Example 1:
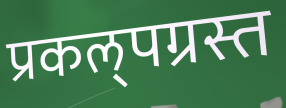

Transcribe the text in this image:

प्रकल्पग्रस्त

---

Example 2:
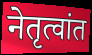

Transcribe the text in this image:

नेतृत्वांत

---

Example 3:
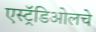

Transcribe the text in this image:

एस्ट्रॅडिओलचे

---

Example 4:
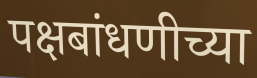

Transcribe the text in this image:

पक्षबांधणीच्या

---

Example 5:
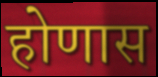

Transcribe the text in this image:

होणास